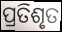
ପ୍ରତିଶୃତ